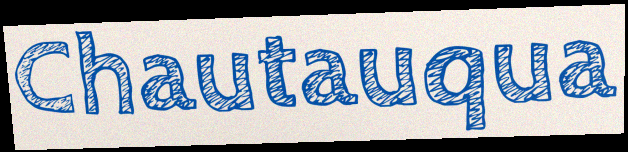
Chautauqua